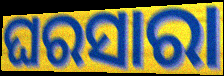
ଘରସାରା